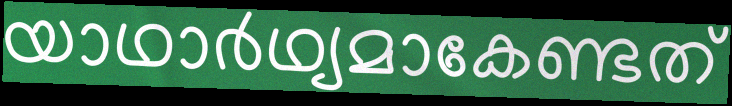
യാഥാർഥ്യമാകേണ്ടത്